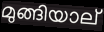
മുങ്ങിയാല്